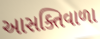
આસક્તિવાળા